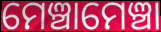
ମେଞ୍ଚାମେଞ୍ଚା